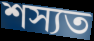
শস্যত